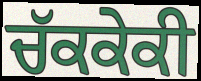
ਚੱਕਕੇਕੀ